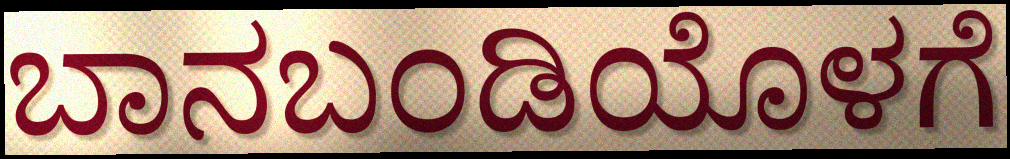
ಬಾನಬಂಡಿಯೊಳಗೆ